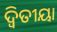
ଦ୍ଵିତୀୟା